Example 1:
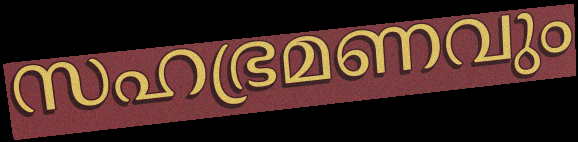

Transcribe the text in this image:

സഹഭ്രമണവും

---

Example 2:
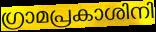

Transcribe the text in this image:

ഗ്രാമപ്രകാശിനി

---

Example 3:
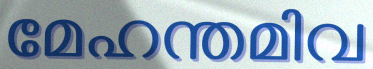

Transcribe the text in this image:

മേഹന്തമിവ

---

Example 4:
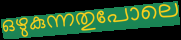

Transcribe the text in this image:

ഒഴുകുന്നതുപോലെ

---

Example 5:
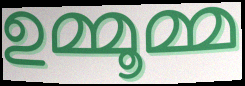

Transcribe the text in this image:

ഉമ്മൂമ്മ